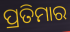
ପ୍ରତିମାର